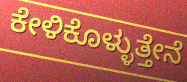
ಕೇಳಿಕೊಳ್ಳುತ್ತೇನೆ